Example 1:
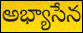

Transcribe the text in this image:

అభ్యాసేన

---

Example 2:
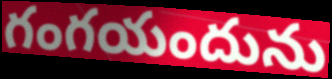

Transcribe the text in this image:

గంగయందును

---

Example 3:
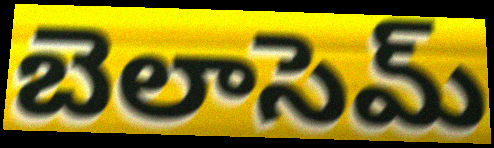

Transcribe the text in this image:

బెలాసెమ్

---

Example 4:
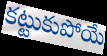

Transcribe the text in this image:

కట్టుకుపోయే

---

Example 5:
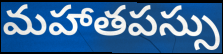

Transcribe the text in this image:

మహాతపస్సు